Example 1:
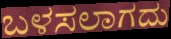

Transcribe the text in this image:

ಬಳಸಲಾಗದು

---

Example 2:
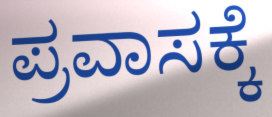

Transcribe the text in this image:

ಪ್ರವಾಸಕ್ಕೆ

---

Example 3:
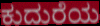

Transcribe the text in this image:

ಕುದುರೆಯ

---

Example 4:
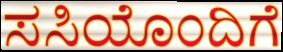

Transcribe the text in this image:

ಸಸಿಯೊಂದಿಗೆ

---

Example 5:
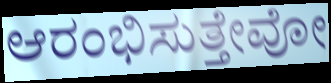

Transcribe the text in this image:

ಆರಂಭಿಸುತ್ತೇವೋ